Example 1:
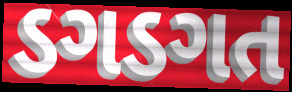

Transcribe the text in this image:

ડગડગત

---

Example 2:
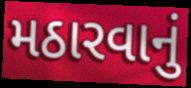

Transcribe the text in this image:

મઠારવાનું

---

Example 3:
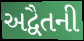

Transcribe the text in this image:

અદ્વૈતની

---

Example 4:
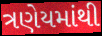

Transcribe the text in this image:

ત્રણેયમાંથી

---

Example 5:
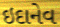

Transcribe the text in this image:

ઇદાનેવ